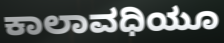
ಕಾಲಾವಧಿಯೂ